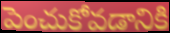
పెంచుకోవడానికి